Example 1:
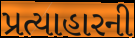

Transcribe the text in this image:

પ્રત્યાહારની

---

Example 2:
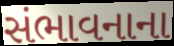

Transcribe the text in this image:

સંભાવનાના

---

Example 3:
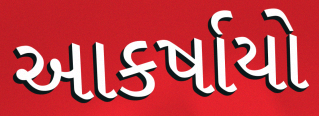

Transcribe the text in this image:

આકર્ષાયો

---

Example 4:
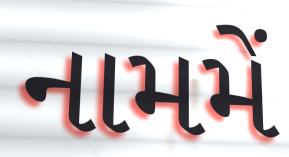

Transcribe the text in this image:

નામમેં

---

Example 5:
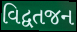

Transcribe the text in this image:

વિદ્વતજન